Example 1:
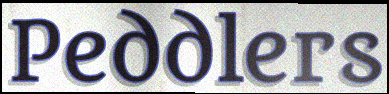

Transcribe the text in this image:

Peddlers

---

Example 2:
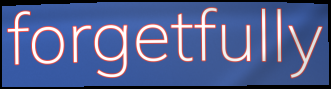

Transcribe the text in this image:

forgetfully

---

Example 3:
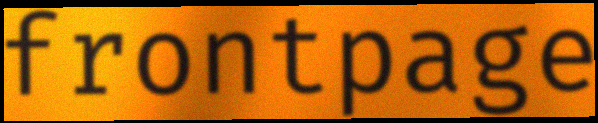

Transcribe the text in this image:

frontpage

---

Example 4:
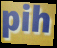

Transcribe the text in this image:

pih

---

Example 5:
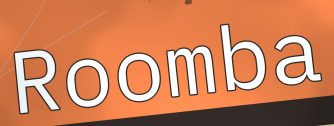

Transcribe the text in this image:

Roomba